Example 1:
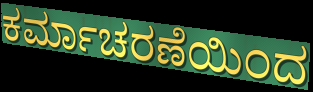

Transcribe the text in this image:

ಕರ್ಮಾಚರಣೆಯಿಂದ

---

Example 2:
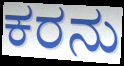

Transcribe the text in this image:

ಕರನು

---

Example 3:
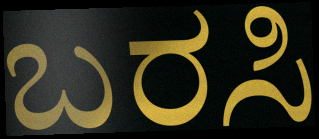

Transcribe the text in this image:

ಬರಸಿ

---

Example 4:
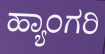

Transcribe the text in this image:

ಹ್ಯಾಂಗರಿ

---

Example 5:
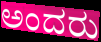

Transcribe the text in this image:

ಅಂದರು